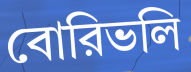
বোরিভলি